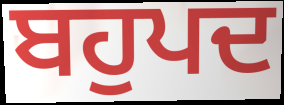
ਬਹੁਪਦ